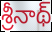
శ్రీనాథ్